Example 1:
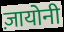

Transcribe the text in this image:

ज़ायोनी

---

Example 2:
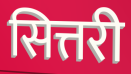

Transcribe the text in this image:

सित्तरी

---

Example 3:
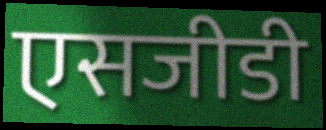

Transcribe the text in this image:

एसजीडी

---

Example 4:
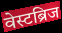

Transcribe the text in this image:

वेस्टब्रिज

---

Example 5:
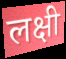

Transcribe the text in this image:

लक्षी